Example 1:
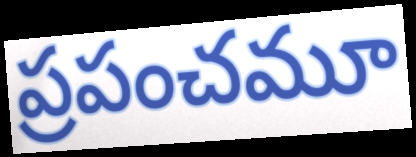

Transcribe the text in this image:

ప్రపంచమూ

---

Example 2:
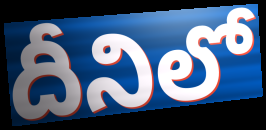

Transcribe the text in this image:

దీనిలో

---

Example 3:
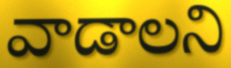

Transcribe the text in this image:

వాడాలని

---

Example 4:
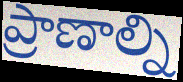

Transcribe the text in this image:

ప్రాణాల్ని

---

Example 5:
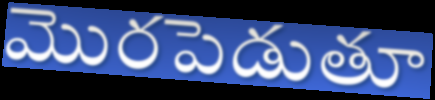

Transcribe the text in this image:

మొరపెడుతూ